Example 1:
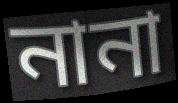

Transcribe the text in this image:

নানা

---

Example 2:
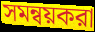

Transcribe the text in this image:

সমন্বয়করা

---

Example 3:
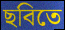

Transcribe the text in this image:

ছবিতে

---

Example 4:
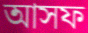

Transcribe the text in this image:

আসফ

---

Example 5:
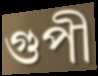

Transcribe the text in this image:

গুপী